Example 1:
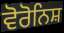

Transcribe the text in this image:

ਵੋਰੋਨਿਸ਼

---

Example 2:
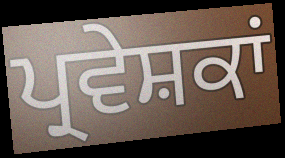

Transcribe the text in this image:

ਪ੍ਰਵੇਸ਼ਕਾਂ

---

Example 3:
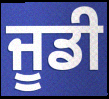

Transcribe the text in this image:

ਜੂਡੀ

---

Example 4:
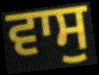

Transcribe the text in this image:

ਵਾਸੁ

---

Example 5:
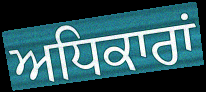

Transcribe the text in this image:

ਅਧਿਕਾਰਾਂ